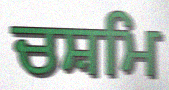
ਚਸ਼ਮਿ